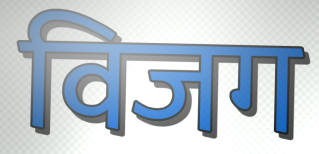
विजग